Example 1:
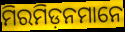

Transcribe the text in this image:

ମିରମିଡ଼ନମାନେ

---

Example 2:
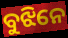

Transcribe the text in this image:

ବୁଝିନେ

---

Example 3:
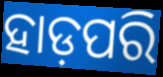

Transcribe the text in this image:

ହାଡ଼ପରି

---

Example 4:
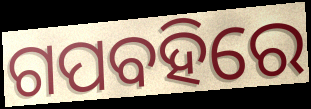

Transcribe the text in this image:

ଗପବହିରେ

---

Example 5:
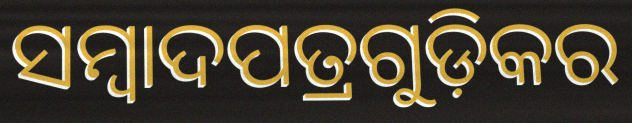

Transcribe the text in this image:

ସମ୍ୱାଦପତ୍ରଗୁଡ଼ିକର